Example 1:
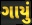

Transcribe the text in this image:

ગાયું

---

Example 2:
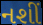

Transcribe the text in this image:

નશીં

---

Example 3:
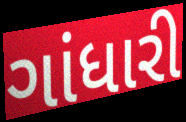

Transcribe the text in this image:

ગાંધારી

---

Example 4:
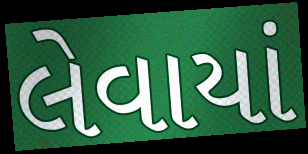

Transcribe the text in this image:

લેવાયાં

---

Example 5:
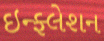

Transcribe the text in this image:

ઇન્ફ્લેશન